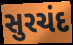
સુરચંદ